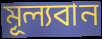
মূল্যবান